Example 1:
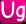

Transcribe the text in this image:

Ug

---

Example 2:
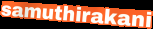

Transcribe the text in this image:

samuthirakani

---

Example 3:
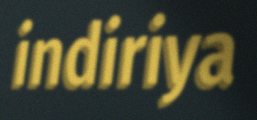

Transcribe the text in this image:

indiriya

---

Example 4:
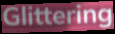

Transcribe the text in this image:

Glittering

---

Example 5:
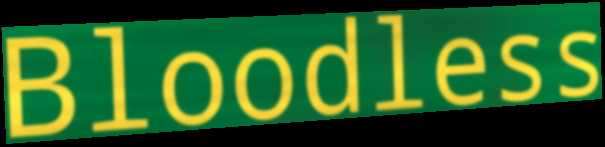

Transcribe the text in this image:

Bloodless